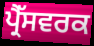
ਪ੍ਰੈੱਸਵਰਕ